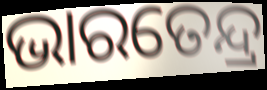
ଭାରତେନ୍ଦ୍ର